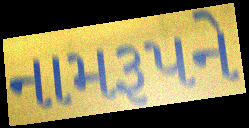
નામરૂપને